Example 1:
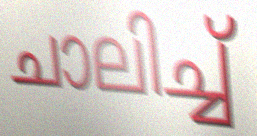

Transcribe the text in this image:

ചാലിച്ച്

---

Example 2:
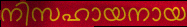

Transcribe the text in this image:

നിസഹായനായ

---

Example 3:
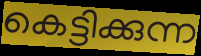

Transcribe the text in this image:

കെട്ടിക്കുന്ന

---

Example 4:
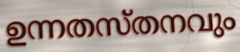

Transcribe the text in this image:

ഉന്നതസ്തനവും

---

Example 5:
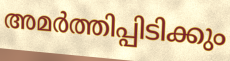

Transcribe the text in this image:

അമർത്തിപ്പിടിക്കും